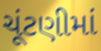
ચૂંટણીમાં